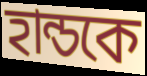
হান্ডকে